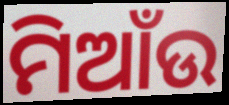
ମିଆଁଉ